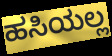
ಹಸಿಯಲ್ಲ